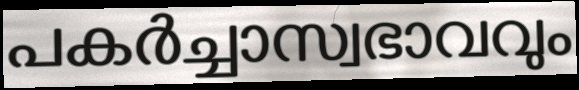
പകർച്ചാസ്വഭാവവും